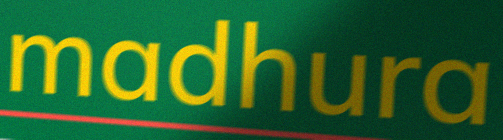
madhura